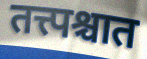
तत्त्पश्चात